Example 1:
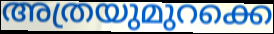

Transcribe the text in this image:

അത്രയുമുറക്കെ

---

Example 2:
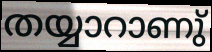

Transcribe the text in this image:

തയ്യാറാണു്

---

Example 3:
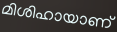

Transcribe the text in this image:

മിശിഹായാണ്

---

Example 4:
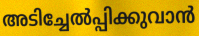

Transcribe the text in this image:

അടിച്ചേൽപ്പിക്കുവാൻ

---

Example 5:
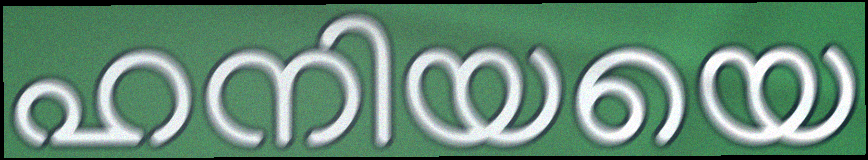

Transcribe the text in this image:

ഹനിയയെ